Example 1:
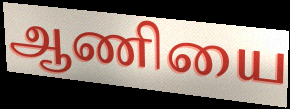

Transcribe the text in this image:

ஆணியை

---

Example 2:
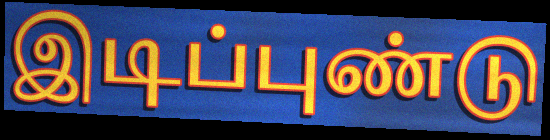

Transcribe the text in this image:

இடிப்புண்டு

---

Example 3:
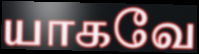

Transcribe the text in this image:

யாகவே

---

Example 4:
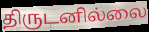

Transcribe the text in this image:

திருடனில்லை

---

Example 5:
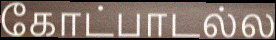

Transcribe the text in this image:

கோட்பாடல்ல